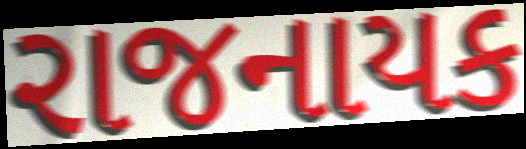
રાજનાયક